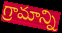
గ్రామాన్ని